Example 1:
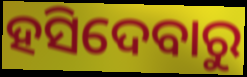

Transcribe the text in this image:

ହସିଦେବାରୁ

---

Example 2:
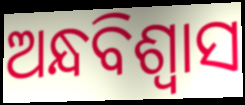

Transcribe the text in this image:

ଅନ୍ଧବିଶ୍ବାସ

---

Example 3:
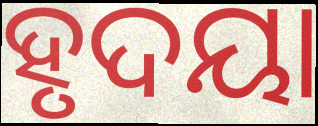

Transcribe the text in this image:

ହୃଦୟା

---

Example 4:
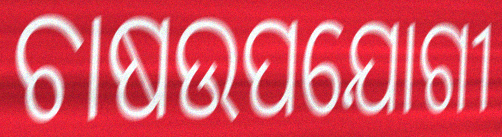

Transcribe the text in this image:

ଚାଷଉପଯୋଗୀ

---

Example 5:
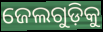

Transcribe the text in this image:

ଜେଲଗୁଡ଼ିକୁ